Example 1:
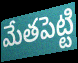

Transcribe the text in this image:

మేతపెట్టి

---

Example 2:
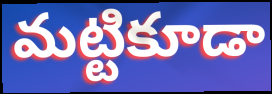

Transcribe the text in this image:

మట్టికూడా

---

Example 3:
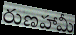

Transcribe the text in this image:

రుణహామీ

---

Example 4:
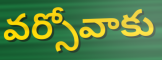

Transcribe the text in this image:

వర్సోవాకు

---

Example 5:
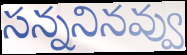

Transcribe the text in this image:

సన్ననినవ్వు